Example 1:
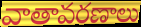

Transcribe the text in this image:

వాతావరణాలు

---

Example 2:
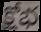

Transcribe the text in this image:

క్షోభ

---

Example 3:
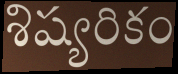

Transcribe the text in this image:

శిష్యరికం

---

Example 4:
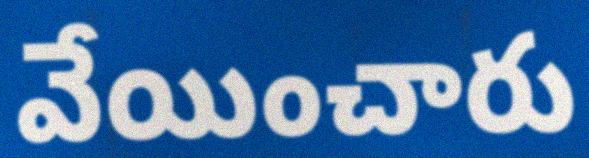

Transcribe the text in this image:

వేయించారు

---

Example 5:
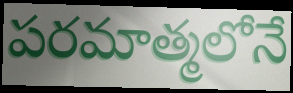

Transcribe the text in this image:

పరమాత్మలోనే